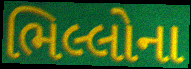
ભિલ્લોના